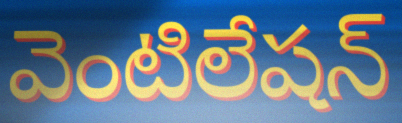
వెంటిలేషన్